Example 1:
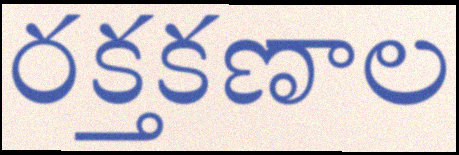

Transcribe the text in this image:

రక్తకణాల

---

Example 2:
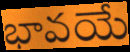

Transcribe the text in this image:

భావయే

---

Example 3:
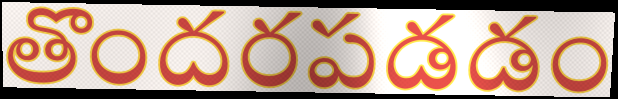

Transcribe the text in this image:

తొందరపడడం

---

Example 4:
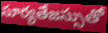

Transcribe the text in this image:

సూర్యతేజస్సుతో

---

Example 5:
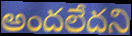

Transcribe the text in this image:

అందలేదని